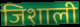
जिशाली